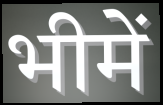
भीमें